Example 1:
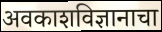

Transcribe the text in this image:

अवकाशविज्ञानाचा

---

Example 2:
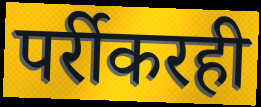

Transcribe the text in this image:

पर्रीकरही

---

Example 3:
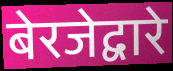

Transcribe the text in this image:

बेरजेद्वारे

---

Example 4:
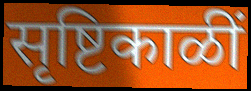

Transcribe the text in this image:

सृष्टिकाळीं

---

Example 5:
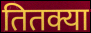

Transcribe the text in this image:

तितक्या